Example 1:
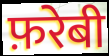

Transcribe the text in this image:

फ़रेबी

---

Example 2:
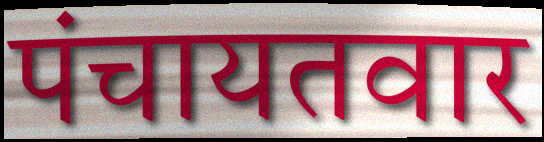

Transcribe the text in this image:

पंचायतवार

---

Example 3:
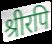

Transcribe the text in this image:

श्रीरपि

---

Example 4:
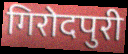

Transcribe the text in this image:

गिरोदपुरी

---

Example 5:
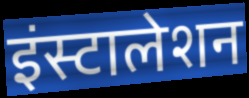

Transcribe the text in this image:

इंस्टालेशन